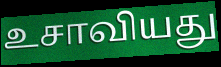
உசாவியது